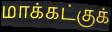
மாக்கட்குக்